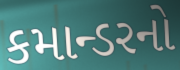
કમાન્ડરનો